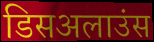
डिसअलाउंस